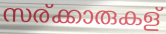
സര്ക്കാരുകള്